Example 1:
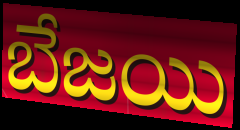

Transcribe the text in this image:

బేజయి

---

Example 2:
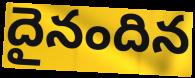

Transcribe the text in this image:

దైనందిన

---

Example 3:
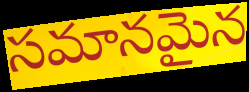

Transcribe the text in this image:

సమానమైన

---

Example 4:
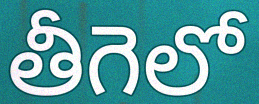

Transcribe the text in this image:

తీగెలో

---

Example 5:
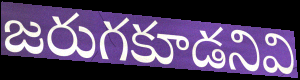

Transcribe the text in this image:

జరుగకూడనివి